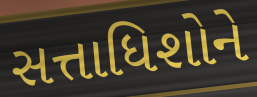
સત્તાધિશોને